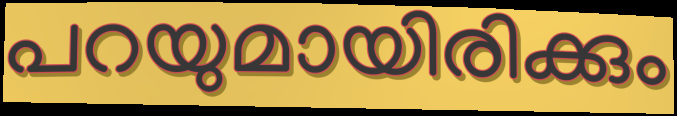
പറയുമായിരിക്കും